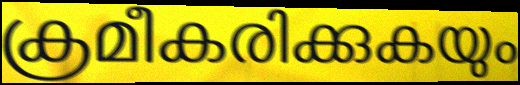
ക്രമീകരിക്കുകയും